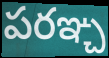
పరఞ్చ